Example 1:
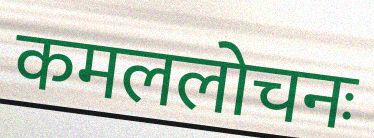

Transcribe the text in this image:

कमललोचनः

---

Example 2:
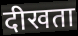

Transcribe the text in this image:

दीखता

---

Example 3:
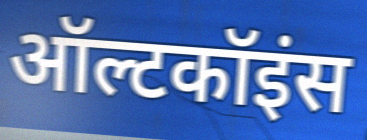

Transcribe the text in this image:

ऑल्टकॉइंस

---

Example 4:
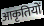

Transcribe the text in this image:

आकृतियों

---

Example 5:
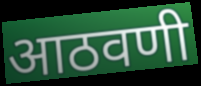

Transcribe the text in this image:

आठवणी